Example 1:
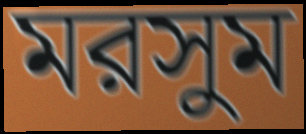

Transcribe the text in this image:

মরসুম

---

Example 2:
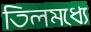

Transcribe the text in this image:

তিলমধ্যে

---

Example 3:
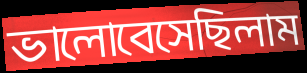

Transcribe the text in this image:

ভালোবেসেছিলাম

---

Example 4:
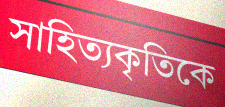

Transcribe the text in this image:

সাহিত্যকৃতিকে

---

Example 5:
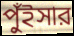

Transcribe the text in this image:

পুঁইসার